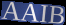
AAIB